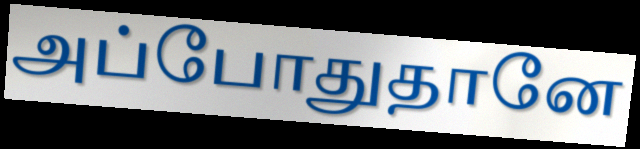
அப்போதுதானே